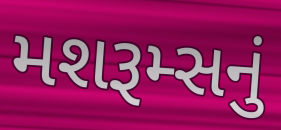
મશરૂમ્સનું